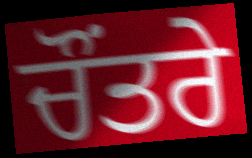
ਚੌਂਤਰੇ